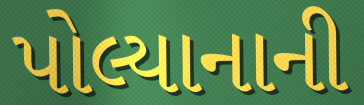
પોલ્યાનાની